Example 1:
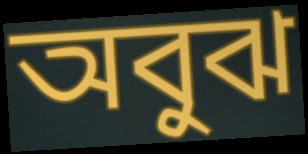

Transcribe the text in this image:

অবুঝ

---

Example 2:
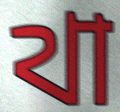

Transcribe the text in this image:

থা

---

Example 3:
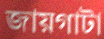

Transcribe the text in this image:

জায়গাটা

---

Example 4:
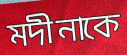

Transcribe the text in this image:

মদীনাকে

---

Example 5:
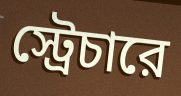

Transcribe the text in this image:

স্ট্রেচারে